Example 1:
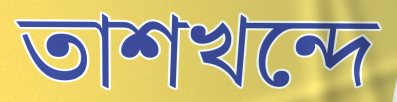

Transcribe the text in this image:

তাশখন্দে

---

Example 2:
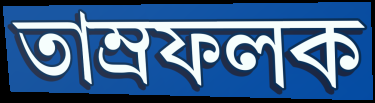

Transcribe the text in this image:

তাম্রফলক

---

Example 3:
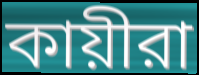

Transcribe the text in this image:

কায়ীরা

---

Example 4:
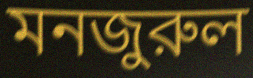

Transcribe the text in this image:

মনজুরুল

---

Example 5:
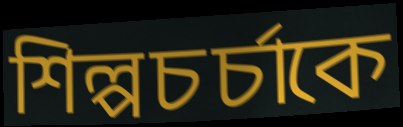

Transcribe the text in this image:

শিল্পচর্চাকে